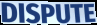
DISPUTE